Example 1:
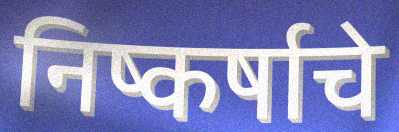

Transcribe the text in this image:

निष्कर्षाचे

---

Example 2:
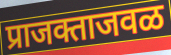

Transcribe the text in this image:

प्राजक्ताजवळ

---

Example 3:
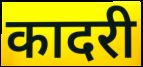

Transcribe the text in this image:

कादरी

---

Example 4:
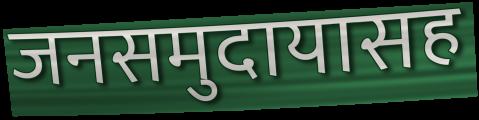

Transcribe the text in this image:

जनसमुदायासह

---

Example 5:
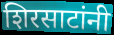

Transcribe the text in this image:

शिरसाटांनी